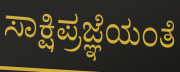
ಸಾಕ್ಷಿಪ್ರಜ್ಞೆಯಂತೆ